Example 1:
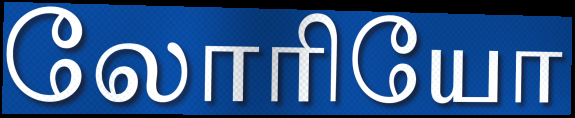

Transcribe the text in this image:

லோரியோ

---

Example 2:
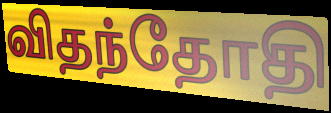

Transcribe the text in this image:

விதந்தோதி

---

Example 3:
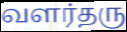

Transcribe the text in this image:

வளர்தரு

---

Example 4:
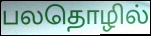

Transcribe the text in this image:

பலதொழில்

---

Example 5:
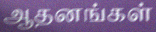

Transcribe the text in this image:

ஆதனங்கள்